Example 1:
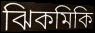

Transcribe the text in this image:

ঝিকমিকি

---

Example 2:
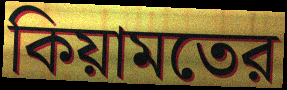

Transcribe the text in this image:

কিয়ামতের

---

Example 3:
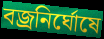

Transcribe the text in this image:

বজ্রনির্ঘোষে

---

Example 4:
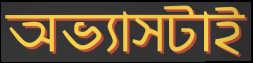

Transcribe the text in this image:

অভ্যাসটাই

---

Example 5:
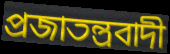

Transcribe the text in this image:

প্রজাতন্ত্রবাদী